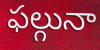
ఫల్గునా